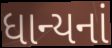
ધાન્યનાં